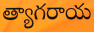
త్యాగరాయ